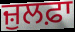
ਜ਼ੁਲਫ਼ਾ